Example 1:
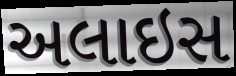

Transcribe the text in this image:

અલાઇસ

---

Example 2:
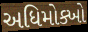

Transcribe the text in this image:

અધિમોક્ખો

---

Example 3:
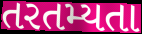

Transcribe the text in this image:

તરતમ્યતા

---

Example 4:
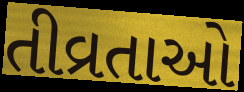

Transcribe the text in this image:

તીવ્રતાઓ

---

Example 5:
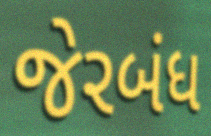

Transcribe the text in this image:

જેરબંધ